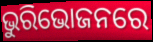
ଭୁରିଭୋଜନରେ